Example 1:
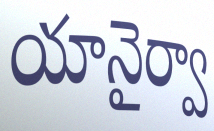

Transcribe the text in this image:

యానైర్వా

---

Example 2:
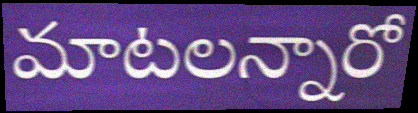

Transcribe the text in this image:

మాటలన్నారో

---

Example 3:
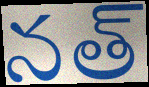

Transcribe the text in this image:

నత్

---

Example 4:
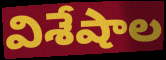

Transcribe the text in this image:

విశేషాల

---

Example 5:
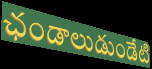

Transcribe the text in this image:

ఛండాలుడుండేటి